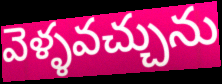
వెళ్ళవచ్చును